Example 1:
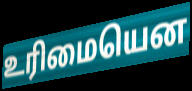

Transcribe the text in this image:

உரிமையென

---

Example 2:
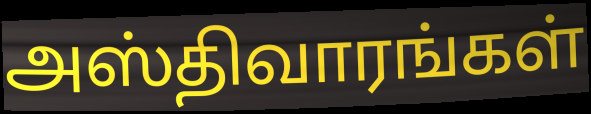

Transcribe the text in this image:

அஸ்திவாரங்கள்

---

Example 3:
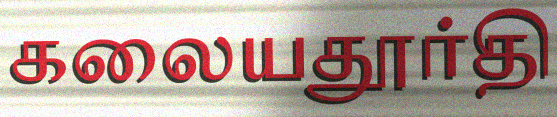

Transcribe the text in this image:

கலையதூர்தி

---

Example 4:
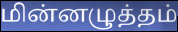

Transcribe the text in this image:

மின்னழுத்தம்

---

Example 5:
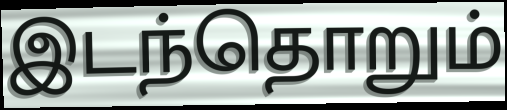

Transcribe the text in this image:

இடந்தொறும்